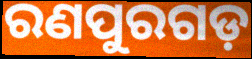
ରଣପୁରଗଡ଼